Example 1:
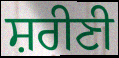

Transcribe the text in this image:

ਸ਼ਰੀਣੀ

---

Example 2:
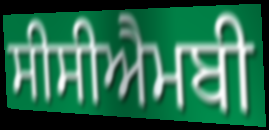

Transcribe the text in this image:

ਸੀਸੀਐਮਬੀ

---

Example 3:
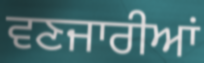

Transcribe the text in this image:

ਵਣਜਾਰੀਆਂ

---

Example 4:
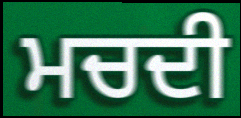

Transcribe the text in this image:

ਮਚਦੀ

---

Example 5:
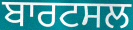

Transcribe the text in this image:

ਬਾਰਟਸਲ